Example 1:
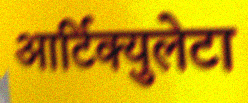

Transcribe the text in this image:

आर्टिक्युलेटा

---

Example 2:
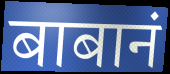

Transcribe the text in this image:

बाबानं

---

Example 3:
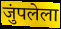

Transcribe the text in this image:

जुंपलेला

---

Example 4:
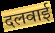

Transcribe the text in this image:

दलवाई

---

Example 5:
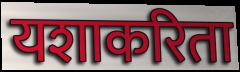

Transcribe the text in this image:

यशाकरिता